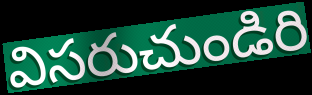
విసరుచుండిరి